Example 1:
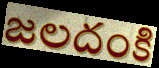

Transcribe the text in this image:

జలదంకి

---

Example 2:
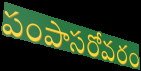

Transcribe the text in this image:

పంపాసరోవరం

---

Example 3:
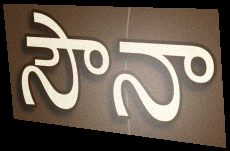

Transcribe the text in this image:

సౌనా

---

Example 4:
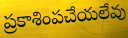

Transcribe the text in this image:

ప్రకాశింపచేయలేవు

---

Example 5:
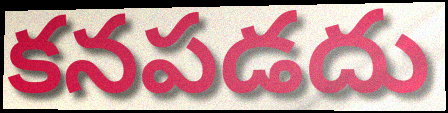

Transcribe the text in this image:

కనపడదు